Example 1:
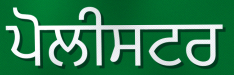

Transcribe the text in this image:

ਪੋਲੀਸਟਰ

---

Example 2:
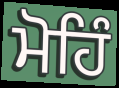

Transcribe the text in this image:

ਮੋਹਿੰ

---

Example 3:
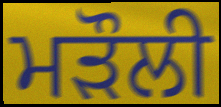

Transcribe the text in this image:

ਮੜੌਲੀ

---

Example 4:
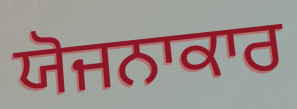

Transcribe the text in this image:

ਯੋਜਨਾਕਾਰ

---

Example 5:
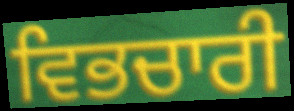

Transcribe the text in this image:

ਵਿਭਚਾਰੀ